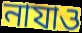
নাযাও